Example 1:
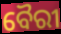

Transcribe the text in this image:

ବୈରୀ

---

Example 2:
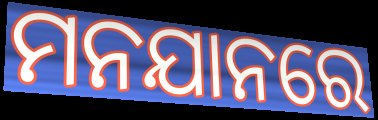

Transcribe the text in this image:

ମନଯାନରେ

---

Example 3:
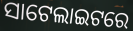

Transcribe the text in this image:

ସାଟେଲାଇଟରେ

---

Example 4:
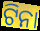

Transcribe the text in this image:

ଟିନା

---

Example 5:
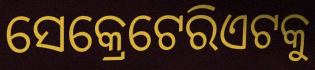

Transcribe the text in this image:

ସେକ୍ରେଟେରିଏଟକୁ